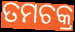
ତମଚକ୍ର